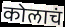
कोलाचं